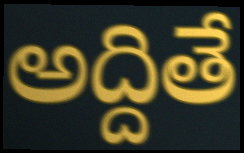
అద్దితే